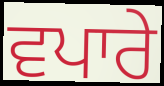
ਵਪਾਰੇ